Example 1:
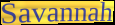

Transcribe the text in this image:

Savannah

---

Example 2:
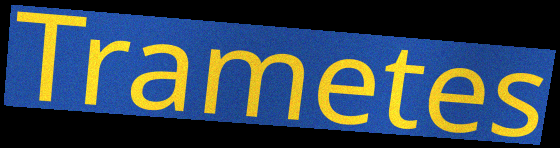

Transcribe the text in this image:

Trametes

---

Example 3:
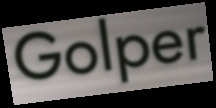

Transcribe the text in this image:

Golper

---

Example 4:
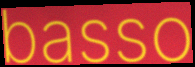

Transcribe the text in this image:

basso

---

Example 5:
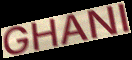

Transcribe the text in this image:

GHANI